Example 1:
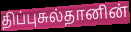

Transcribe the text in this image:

திப்புசுல்தானின்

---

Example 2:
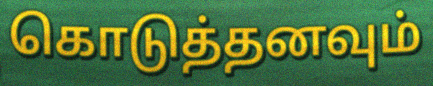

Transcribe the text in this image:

கொடுத்தனவும்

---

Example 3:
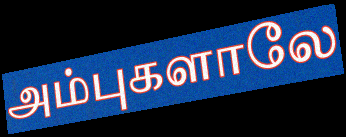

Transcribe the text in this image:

அம்புகளாலே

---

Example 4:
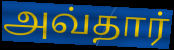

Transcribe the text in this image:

அவ்தார்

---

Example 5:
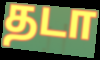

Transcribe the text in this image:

தடா